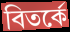
বিতর্কে